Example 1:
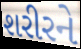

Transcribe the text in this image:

શરીરને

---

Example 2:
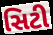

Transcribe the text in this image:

સિટી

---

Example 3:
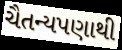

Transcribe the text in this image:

ચૈતન્યપણાથી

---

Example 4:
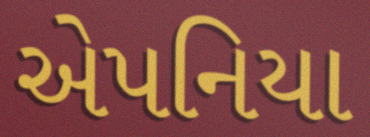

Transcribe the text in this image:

એપનિયા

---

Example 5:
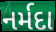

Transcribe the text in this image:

નર્મદા